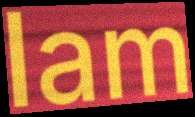
Iam